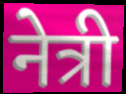
नेत्री